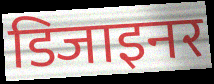
डिजाइनर